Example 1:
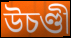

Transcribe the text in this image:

উচণ্ডী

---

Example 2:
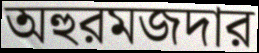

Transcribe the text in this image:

অহুরমজদার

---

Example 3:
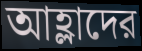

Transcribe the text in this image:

আহ্লাদের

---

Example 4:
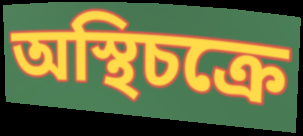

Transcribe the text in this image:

অস্থিচক্রে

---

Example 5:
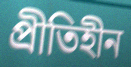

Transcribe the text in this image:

প্রীতিহীন